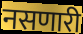
नसणारी